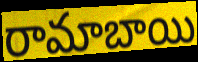
రామాబాయి